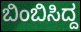
ಬಿಂಬಿಸಿದ್ದ